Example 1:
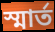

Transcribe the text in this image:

স্মার্ত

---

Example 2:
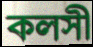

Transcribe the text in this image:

কলসী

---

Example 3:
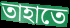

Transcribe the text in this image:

তাহাতে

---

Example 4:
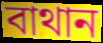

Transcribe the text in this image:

বাথান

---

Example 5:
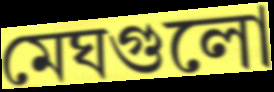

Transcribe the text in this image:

মেঘগুলো